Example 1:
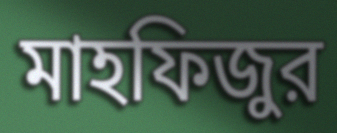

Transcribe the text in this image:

মাহফিজুর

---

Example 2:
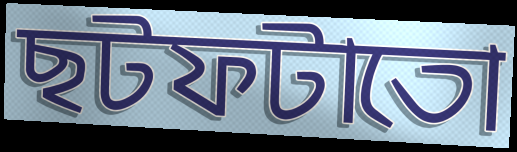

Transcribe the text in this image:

ছটফটাতো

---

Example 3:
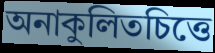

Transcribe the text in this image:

অনাকুলিতচিত্তে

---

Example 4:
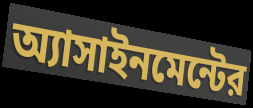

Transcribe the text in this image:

অ্যাসাইনমেন্টের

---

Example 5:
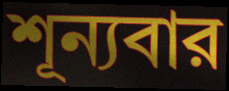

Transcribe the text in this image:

শূন্যবার